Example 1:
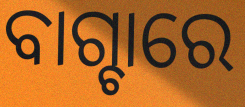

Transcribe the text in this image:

ବାଗ୍ଚାରେ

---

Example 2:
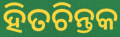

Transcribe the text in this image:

ହିତଚିନ୍ତକ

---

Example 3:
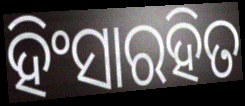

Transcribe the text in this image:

ହିଂସାରହିତ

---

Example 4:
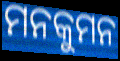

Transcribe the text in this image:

ମନକୁମନ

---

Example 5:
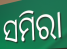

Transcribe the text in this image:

ସମିରା